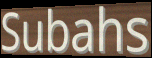
Subahs